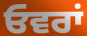
ਓਵਰਾਂ